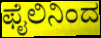
ಫೈಲಿನಿಂದ